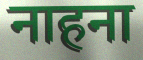
नाहना